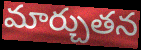
మార్చుతన